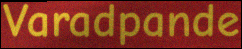
Varadpande